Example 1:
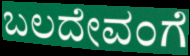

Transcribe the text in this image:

ಬಲದೇವಂಗೆ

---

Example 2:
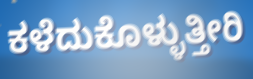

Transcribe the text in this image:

ಕಳೆದುಕೊಳ್ಳುತ್ತೀರಿ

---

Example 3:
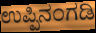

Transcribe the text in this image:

ಉಪ್ಪಿನಂಗಡಿ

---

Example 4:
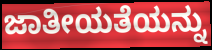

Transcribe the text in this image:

ಜಾತೀಯತೆಯನ್ನು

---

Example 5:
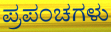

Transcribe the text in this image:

ಪ್ರಪಂಚಗಳು